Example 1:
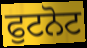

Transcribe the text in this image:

ਫੁਟਨੋਟ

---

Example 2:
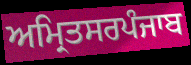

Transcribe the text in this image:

ਅਮ੍ਰਿਤਸਰਪੰਜਾਬ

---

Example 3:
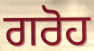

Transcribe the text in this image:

ਗਰੋਹ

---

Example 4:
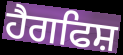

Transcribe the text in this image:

ਹੈਗਫਿਸ਼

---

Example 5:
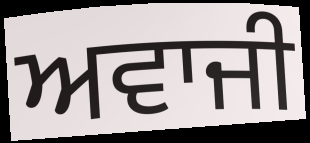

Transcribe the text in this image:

ਅਵਾਜੀ